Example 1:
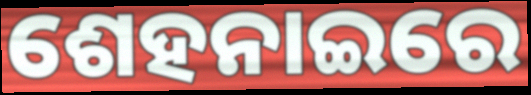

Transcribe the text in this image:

ଶେହନାଇରେ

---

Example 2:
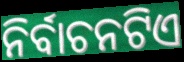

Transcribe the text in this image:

ନିର୍ବାଚନଟିଏ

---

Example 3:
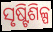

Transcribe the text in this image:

ସୃଷ୍ଟିଶିଳ୍ପ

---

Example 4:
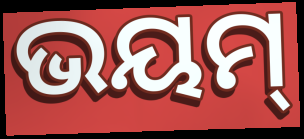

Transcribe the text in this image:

ଭୟମ୍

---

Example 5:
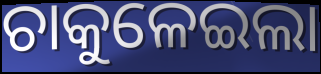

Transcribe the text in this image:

ଚାକୁଳେଇଲା